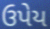
ઉપેય